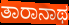
ತಾರಾನಾಥ